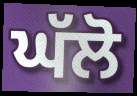
ਘੱਲੋ